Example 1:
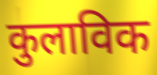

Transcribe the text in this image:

कुलाविक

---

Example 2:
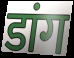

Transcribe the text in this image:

डांग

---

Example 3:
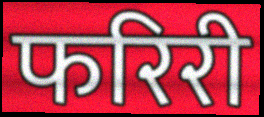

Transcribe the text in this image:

फरिरी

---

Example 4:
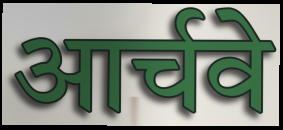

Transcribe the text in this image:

आर्चवे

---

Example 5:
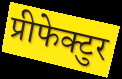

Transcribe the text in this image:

प्रीफेक्टुर